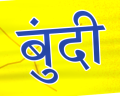
बुंदी